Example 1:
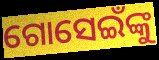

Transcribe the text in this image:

ଗୋସେଇଁଙ୍କୁ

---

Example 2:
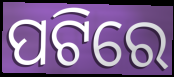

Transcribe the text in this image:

ପଟିରେ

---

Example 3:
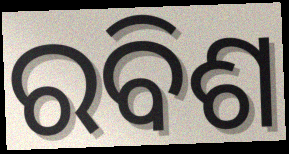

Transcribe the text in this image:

ରବିଶ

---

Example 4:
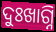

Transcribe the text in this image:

ଦୁଃଖାଗ୍ନି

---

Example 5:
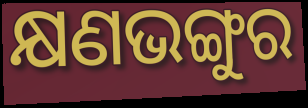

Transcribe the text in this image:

କ୍ଷଣଭଙ୍ଗୁର